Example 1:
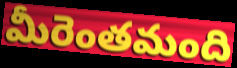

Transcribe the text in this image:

మీరెంతమంది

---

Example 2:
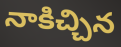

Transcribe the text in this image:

నాకిచ్చిన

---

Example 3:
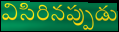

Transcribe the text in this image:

విసిరినప్పుడు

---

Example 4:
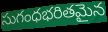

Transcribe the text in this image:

సుగంధభరితమైన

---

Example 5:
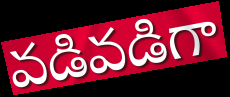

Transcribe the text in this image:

వడివడిగా